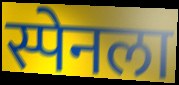
स्पेनला